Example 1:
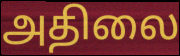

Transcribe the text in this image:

அதிலை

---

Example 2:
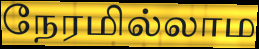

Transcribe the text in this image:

நேரமில்லாம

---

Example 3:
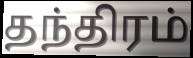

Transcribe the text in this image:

தந்திரம்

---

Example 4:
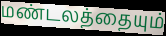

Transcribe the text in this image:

மண்டலத்தையும்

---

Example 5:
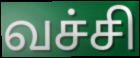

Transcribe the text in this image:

வச்சி